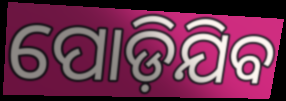
ପୋଡ଼ିଯିବ